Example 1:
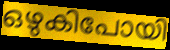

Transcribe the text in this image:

ഒഴുകിപോയി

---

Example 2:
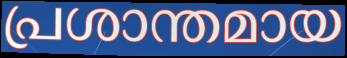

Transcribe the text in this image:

പ്രശാന്തമായ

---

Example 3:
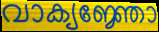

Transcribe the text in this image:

വാക്യജ്ഞോ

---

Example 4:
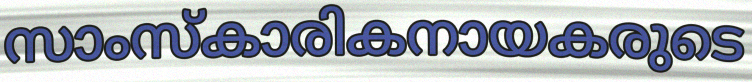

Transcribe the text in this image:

സാംസ്കാരികനായകരുടെ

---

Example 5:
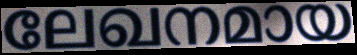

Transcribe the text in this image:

ലേഖനമായ